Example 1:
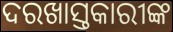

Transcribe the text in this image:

ଦରଖାସ୍ତକାରୀଙ୍କ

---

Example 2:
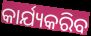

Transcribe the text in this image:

କାର୍ଯ୍ୟକରିବ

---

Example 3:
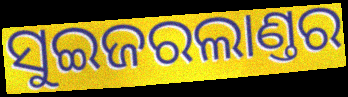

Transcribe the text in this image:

ସୁଇଜରଲାଣ୍ତର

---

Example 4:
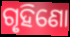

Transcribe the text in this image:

ଗୃହିଣୋ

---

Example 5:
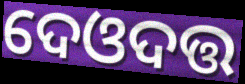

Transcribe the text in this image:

ଦେଓଦତ୍ତ